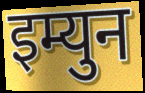
इम्युन